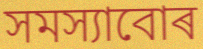
সমস্যাবোৰ